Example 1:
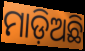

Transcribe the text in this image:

ମାଡ଼ିଅଛି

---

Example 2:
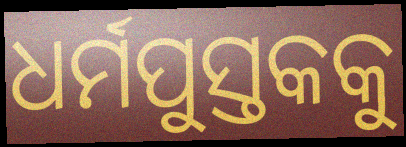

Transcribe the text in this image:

ଧର୍ମପୁସ୍ତକକୁ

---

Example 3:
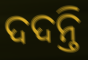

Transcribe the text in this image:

ଦଦନ୍ତି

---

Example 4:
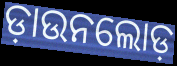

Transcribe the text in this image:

ଡ଼ାଉନଲୋଡ଼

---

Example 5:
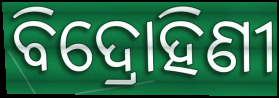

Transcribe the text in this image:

ବିଦ୍ରୋହିଣୀ